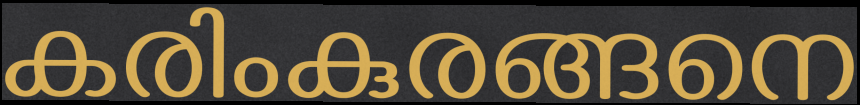
കരിംകുരങ്ങനെ